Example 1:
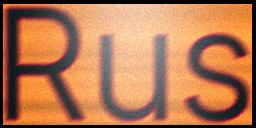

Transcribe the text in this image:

Rus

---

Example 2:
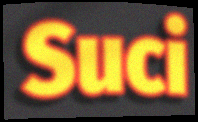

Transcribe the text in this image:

Suci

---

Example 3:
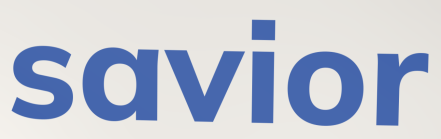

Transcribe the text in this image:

savior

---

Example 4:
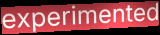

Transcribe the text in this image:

experimented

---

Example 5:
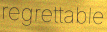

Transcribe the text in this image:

regrettable